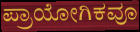
ಪ್ರಾಯೋಗಿಕವೂ